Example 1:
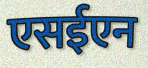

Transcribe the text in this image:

एसईएन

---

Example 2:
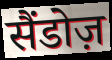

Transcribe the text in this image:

सैंडोज़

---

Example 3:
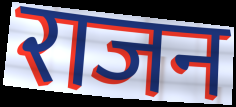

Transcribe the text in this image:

राजन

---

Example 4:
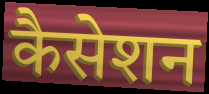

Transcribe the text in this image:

कैसेशन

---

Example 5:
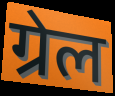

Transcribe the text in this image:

ग्रेल